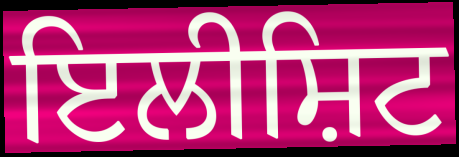
ਇਲੀਸ਼ਿਟ